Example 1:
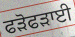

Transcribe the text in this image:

ਫੜੋਫੜਾਈ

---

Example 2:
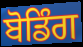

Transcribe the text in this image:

ਬੋਡਿੰਗ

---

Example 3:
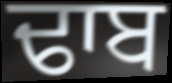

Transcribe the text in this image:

ਢਾਬ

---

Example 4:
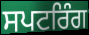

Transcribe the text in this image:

ਸਪਟਰਿੰਗ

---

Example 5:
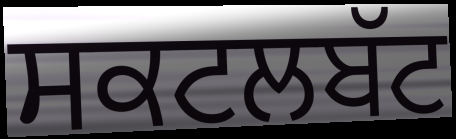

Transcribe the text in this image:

ਸਕਟਲਬੱਟ